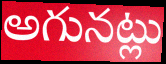
అగునట్లు